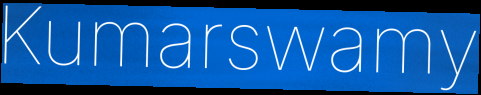
Kumarswamy